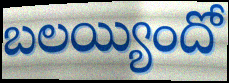
బలయ్యిందో